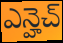
ఎన్హెచ్